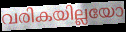
വരികയില്ലയോ